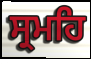
ਸ੍ਰਮਹਿ